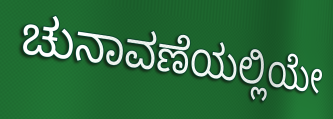
ಚುನಾವಣೆಯಲ್ಲಿಯೇ